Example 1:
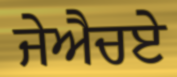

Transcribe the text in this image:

ਜੇਐਚਏ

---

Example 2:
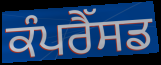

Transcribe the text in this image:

ਕੰਪਰੈੱਸਡ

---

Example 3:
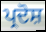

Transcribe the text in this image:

ਪ੍ਰਦੋਸ਼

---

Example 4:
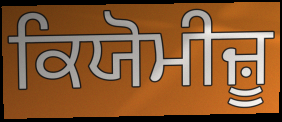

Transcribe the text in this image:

ਕਿਯੋਮੀਜ਼ੂ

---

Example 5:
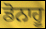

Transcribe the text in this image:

ਡੋਨਾਹੂ